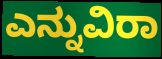
ಎನ್ನುವಿರಾ